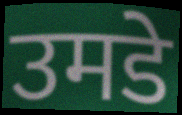
उमडे